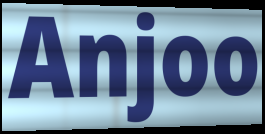
Anjoo